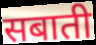
सबाती